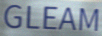
GLEAM